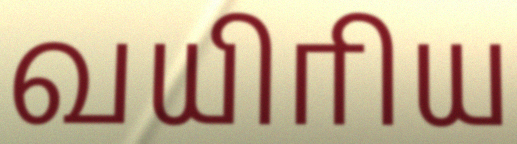
வயிரிய